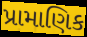
પ્રામાણિક